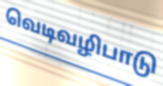
வெடிவழிபாடு